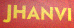
JHANVI